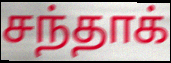
சந்தாக்